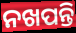
ନଖପନ୍ତି